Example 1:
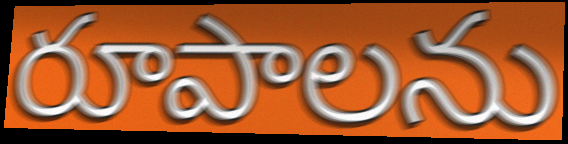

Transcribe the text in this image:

రూపాలను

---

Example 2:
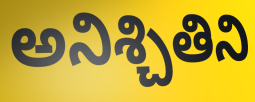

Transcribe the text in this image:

అనిశ్చితిని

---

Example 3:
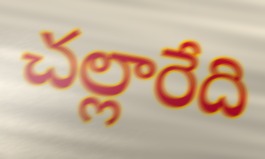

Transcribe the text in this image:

చల్లారేది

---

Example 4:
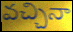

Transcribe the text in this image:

వచ్చినా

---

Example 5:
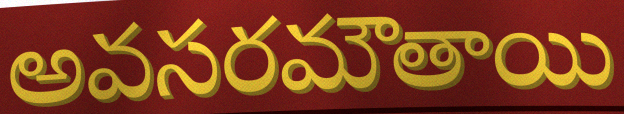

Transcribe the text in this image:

అవసరమౌతాయి